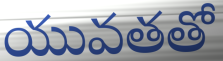
యువతతో